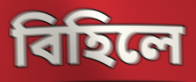
বিহিলে